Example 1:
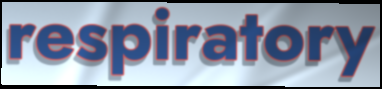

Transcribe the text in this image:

respiratory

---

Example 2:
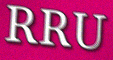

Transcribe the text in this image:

RRU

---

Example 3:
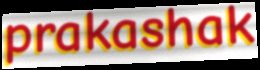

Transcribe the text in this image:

prakashak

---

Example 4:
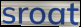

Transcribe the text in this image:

sroat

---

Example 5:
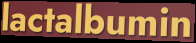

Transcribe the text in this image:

lactalbumin